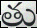
తు